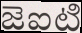
జెఐటి